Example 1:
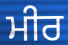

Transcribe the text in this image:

ਮੀਰ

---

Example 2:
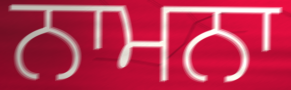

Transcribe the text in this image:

ਨਾਮਨਾ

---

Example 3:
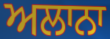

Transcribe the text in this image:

ਅਲਾਨਾ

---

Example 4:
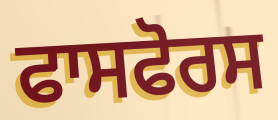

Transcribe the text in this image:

ਫਾਸਫੋਰਸ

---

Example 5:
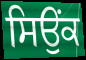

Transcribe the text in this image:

ਸਿਉਂਕ